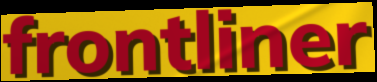
frontliner